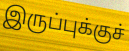
இருப்புக்குச்